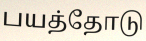
பயத்தோடு